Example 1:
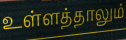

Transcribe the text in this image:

உள்ளத்தாலும்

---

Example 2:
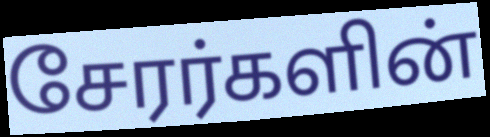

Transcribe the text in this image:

சேரர்களின்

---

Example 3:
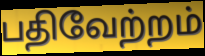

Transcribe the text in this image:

பதிவேற்றம்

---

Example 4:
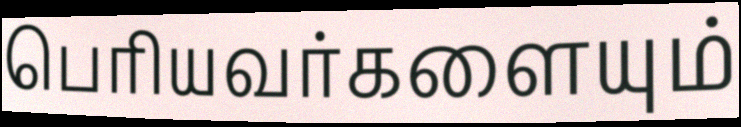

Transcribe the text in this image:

பெரியவர்களையும்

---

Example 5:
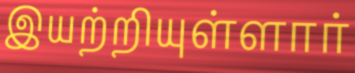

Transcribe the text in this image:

இயற்றியுள்ளார்